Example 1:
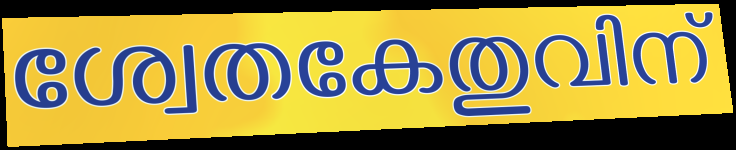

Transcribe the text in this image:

ശ്വേതകേതുവിന്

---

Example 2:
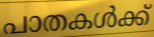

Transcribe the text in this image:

പാതകൾക്ക്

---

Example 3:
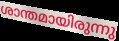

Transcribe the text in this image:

ശാന്തമായിരുന്നു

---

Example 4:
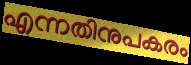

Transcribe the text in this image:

എന്നതിനുപകരം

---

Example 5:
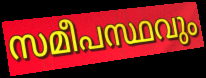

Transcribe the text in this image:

സമീപസ്ഥവും